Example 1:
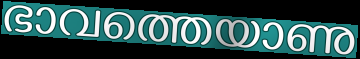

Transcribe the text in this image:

ഭാവത്തെയാണു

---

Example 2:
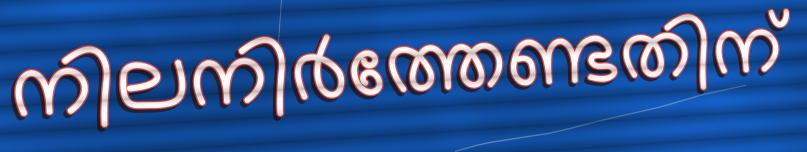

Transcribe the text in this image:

നിലനിർത്തേണ്ടതിന്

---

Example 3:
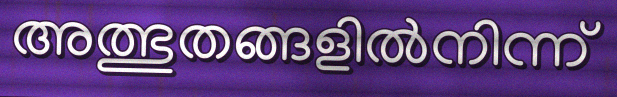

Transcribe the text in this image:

അത്ഭുതങ്ങളിൽനിന്ന്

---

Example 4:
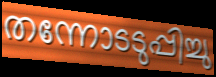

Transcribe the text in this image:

തന്നോടടുപ്പിച്ചു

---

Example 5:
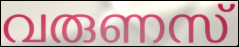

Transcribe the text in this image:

വരുണസ്